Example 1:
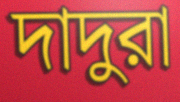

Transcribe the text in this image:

দাদুরা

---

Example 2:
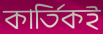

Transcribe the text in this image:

কার্তিকই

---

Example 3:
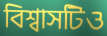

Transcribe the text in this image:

বিশ্বাসটিও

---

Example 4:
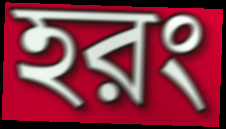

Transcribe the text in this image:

হরং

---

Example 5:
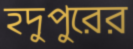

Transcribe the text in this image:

হদুপুরের